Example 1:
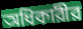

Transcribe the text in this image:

অধিকারীর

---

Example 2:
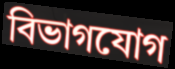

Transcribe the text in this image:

বিভাগযোগ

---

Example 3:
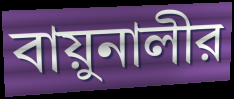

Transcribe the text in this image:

বায়ুনালীর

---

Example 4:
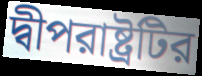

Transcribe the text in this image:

দ্বীপরাষ্ট্রটির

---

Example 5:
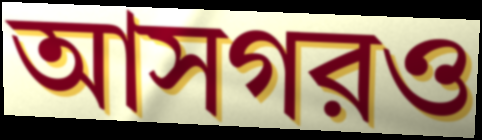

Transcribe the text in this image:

আসগরও